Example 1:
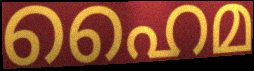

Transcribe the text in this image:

ഹൈമ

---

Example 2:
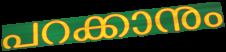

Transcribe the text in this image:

പറക്കാനും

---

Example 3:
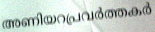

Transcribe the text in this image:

അണിയറപ്രവർത്തകർ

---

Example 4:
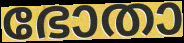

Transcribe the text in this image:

ഭോതാ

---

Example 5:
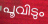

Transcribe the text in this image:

പൂവിടും